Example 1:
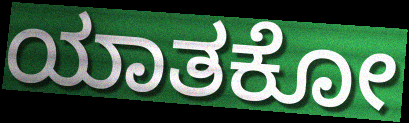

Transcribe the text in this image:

ಯಾತಕೋ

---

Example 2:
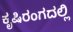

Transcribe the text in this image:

ಕೃಷಿರಂಗದಲ್ಲಿ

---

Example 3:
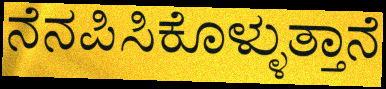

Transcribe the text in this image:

ನೆನಪಿಸಿಕೊಳ್ಳುತ್ತಾನೆ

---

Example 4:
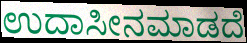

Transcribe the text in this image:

ಉದಾಸೀನಮಾಡದೆ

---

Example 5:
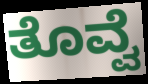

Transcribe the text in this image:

ತೊವ್ವೆ